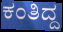
ಕಂತಿದ್ದ